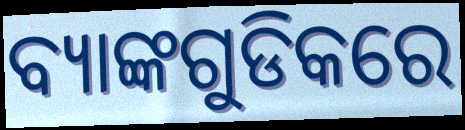
ବ୍ୟାଙ୍କଗୁଡିକରେ